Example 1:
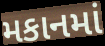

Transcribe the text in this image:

મકાનમાં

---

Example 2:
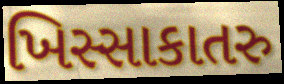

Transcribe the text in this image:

ખિસ્સાકાતરુ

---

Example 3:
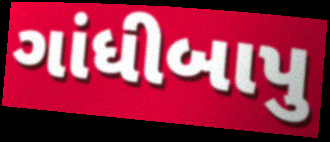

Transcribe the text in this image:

ગાંધીબાપુ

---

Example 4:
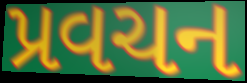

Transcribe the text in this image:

પ્રવચન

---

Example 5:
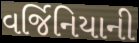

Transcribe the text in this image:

વર્જિનિયાની